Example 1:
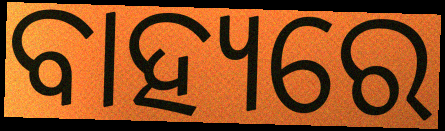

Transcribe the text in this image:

ବାହ୍ୟରେ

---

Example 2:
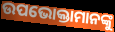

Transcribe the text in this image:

ଉପଭୋକ୍ତାମାନଙ୍କୁ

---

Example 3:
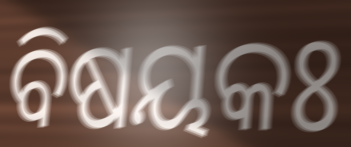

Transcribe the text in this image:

ବିଷୟକଃ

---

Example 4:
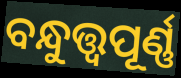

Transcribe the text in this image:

ବନ୍ଧୁତ୍ତ୍ୱପୂର୍ଣ୍ଣ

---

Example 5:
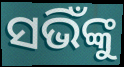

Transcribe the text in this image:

ସଭିଁଙ୍କୁ